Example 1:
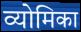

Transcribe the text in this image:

व्योमिका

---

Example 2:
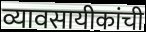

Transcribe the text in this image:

व्यावसायीकांची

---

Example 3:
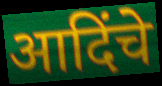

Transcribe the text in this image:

आदिंचे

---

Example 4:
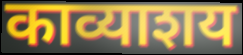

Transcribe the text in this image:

काव्याशय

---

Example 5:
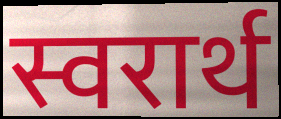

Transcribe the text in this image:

स्वरार्थ